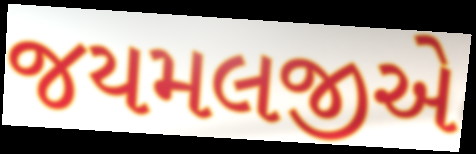
જયમલજીએ